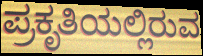
ಪ್ರಕೃತಿಯಲ್ಲಿರುವ